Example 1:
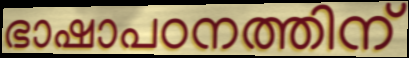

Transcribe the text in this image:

ഭാഷാപഠനത്തിന്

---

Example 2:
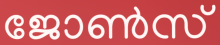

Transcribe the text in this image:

ജോൺസ്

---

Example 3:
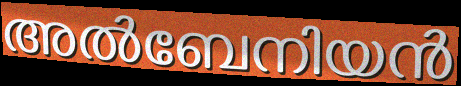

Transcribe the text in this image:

അൽബേനിയൻ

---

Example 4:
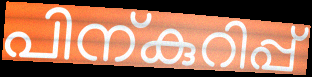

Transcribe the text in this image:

പിന്കുറിപ്പ്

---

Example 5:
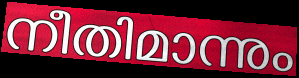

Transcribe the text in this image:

നീതിമാന്നും